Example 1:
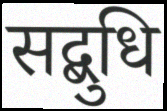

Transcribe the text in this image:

सद्बुधि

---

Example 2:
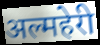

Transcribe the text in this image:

अल्महेरी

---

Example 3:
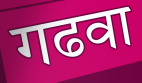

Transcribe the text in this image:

गढवा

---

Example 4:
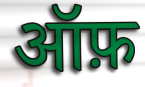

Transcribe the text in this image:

ऑफ़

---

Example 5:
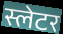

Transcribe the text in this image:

स्लेटर